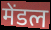
मेंडल